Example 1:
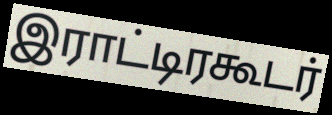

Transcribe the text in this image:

இராட்டிரகூடர்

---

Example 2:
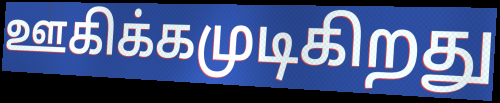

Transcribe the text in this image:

ஊகிக்கமுடிகிறது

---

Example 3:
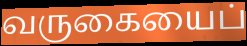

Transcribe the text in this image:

வருகையைப்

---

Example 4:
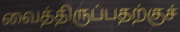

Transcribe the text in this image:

வைத்திருப்பதற்குச்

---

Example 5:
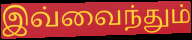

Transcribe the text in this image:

இவ்வைந்தும்